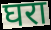
घरा